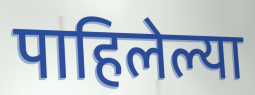
पाहिलेल्या